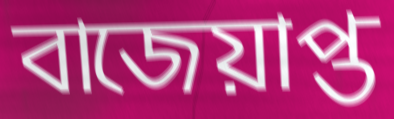
বাজেয়াপ্ত